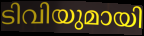
ടിവിയുമായി